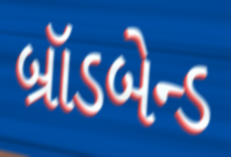
બ્રૉડબેન્ડ